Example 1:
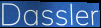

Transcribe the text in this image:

Dassler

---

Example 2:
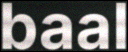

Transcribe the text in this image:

baal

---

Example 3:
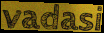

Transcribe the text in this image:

vadasi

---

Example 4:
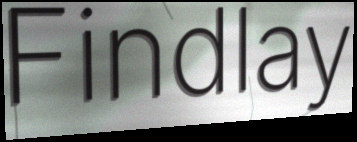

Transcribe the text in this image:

Findlay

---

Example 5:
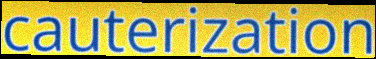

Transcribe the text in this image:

cauterization